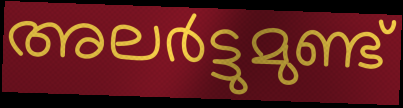
അലർട്ടുമുണ്ട്